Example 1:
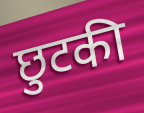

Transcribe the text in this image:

छुटकी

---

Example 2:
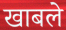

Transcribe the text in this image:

खाबले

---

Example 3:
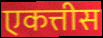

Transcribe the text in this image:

एकत्तीस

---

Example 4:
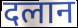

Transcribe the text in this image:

दलान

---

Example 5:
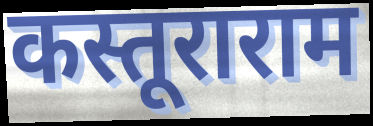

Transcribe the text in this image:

कस्तूराराम